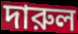
দারুল